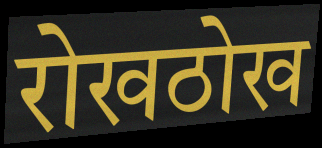
रोखठोख